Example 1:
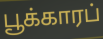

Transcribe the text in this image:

பூக்காரப்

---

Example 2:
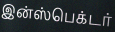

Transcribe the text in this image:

இன்ஸ்பெக்டர்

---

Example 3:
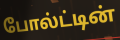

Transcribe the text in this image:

போல்ட்டின்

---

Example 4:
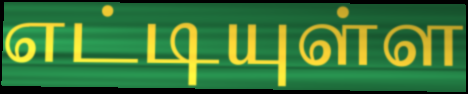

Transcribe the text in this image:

எட்டியுள்ள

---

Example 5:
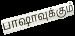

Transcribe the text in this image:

பாஷாவுக்கும்